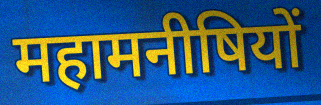
महामनीषियों